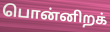
பொன்னிறக்